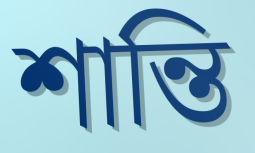
শান্তি